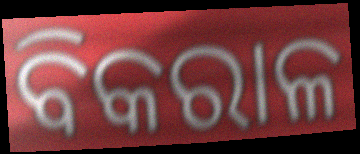
ବିକରାଳ